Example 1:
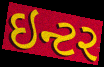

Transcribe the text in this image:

ઇન્ટર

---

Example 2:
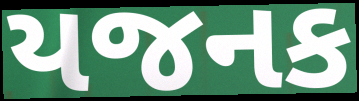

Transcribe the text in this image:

યજનક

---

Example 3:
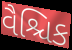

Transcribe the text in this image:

વૈશ્ચિક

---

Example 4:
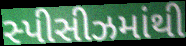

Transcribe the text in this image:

સ્પીસીઝમાંથી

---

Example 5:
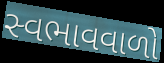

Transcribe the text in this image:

સ્વભાવવાળો